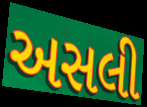
અસલી